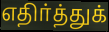
எதிர்த்துக்